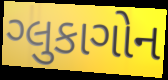
ગ્લુકાગોન